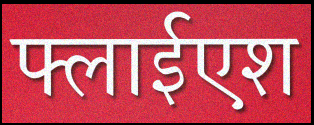
फ्लाईएश